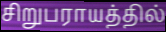
சிறுபராயத்தில்